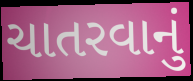
ચાતરવાનું